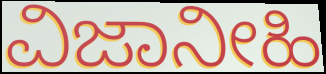
ವಿಜಾನೀಹಿ